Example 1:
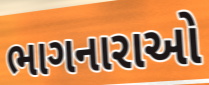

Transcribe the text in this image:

ભાગનારાઓ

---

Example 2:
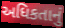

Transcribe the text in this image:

અધિકતાનું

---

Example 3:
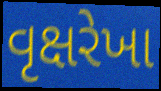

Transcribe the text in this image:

વૃક્ષરેખા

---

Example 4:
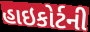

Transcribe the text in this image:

હાઇકોર્ટની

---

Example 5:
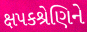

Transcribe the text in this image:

ક્ષપકશ્રેણિને